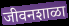
जीवनशाळा